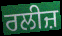
ਰਲੀਜ਼